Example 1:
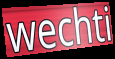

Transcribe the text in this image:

wechti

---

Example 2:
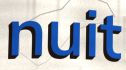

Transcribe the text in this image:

nuit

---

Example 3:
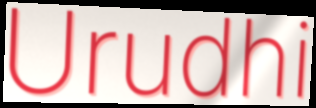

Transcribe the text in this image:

Urudhi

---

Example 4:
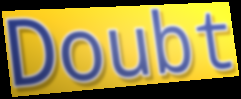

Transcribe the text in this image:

Doubt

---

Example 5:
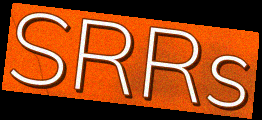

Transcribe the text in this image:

SRRs